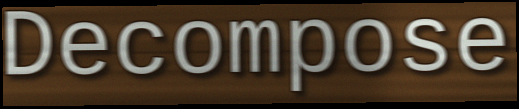
Decompose